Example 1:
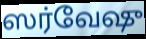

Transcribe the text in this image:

ஸர்வேஷு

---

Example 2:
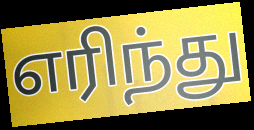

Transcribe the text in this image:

எரிந்து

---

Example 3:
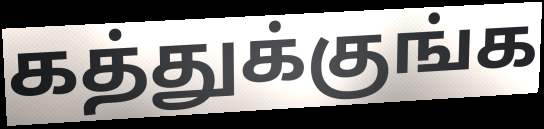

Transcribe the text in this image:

கத்துக்குங்க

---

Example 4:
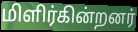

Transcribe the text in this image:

மிளிர்கின்றனர்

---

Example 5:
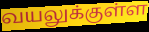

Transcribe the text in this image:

வயலுக்குள்ள